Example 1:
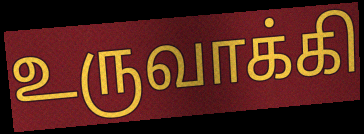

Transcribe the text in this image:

உருவாக்கி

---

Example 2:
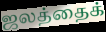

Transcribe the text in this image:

ஜலத்தைக்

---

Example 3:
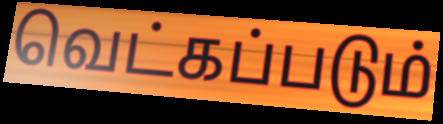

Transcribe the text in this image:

வெட்கப்படும்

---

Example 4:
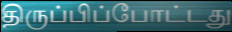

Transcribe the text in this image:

திருப்பிப்போட்டது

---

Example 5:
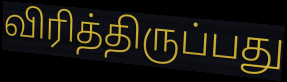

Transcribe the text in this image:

விரித்திருப்பது